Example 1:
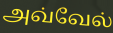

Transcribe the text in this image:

அவ்வேல்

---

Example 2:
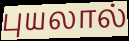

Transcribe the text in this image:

புயலால்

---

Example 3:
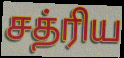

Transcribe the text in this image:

சத்ரிய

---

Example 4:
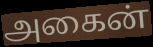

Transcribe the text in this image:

அகைன்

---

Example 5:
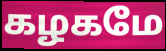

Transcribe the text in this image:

கழகமே